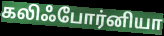
கலிஃபோர்னியா